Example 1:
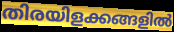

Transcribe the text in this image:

തിരയിളക്കങ്ങളിൽ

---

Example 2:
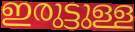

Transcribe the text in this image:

ഇരുട്ടുള്ള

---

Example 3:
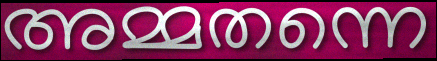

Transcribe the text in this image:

അമ്മതന്നെ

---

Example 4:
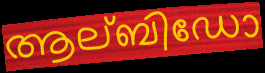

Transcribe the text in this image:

ആല്ബിഡോ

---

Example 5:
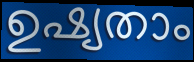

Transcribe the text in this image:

ഉഷ്യതാം